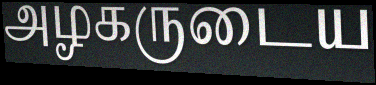
அழகருடைய